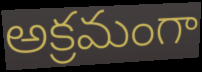
అక్రమంగా